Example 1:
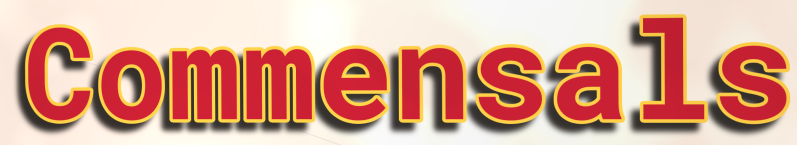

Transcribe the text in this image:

Commensals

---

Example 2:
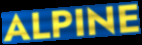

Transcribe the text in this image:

ALPINE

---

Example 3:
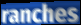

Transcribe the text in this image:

ranches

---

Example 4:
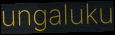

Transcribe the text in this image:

ungaluku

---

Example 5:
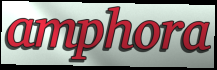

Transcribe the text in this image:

amphora